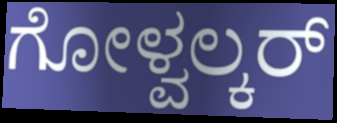
ಗೋಳ್ವಲ್ಕರ್